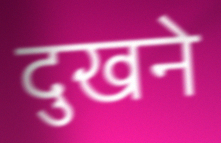
दुखने